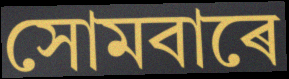
সোমবাৰে